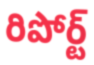
రిపోర్ట్